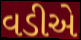
વડીએ